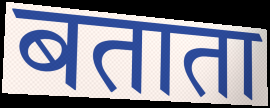
बताता